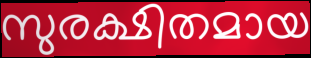
സുരക്ഷിതമായ